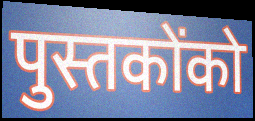
पुस्तकोंको